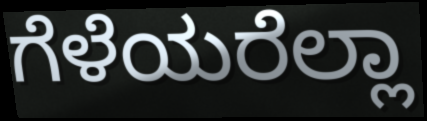
ಗೆಳೆಯರೆಲ್ಲಾ